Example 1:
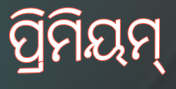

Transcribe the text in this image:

ପ୍ରିମିୟମ୍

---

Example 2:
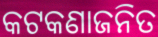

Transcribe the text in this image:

କଟକଣାଜନିତ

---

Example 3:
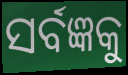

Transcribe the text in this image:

ସର୍ବଜ୍ଞକୁ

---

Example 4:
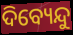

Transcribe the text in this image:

ଦିବ୍ୟେନ୍ଦୁ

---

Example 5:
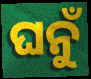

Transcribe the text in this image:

ଘନୁଁ